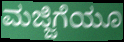
ಮಜ್ಜಿಗೆಯೂ